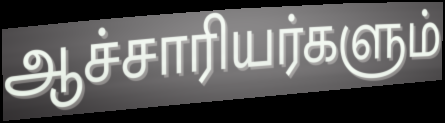
ஆச்சாரியர்களும்